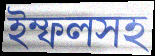
ইম্ফলসহ